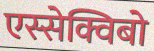
एस्सेक्विबो